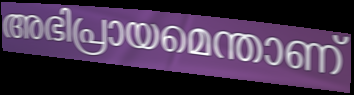
അഭിപ്രായമെന്താണ്